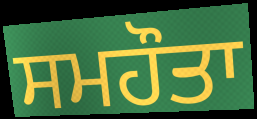
ਸਮਹੌਤਾ